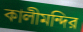
কালীমন্দির